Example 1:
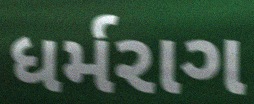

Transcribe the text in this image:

ધર્મરાગ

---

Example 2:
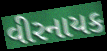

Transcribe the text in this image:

વીરનાયક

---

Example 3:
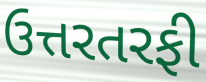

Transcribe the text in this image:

ઉત્તરતરફી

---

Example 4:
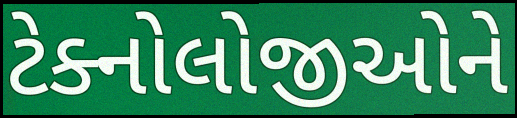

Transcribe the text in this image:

ટેક્નોલોજીઓને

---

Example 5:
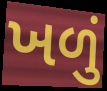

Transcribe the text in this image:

ખળું